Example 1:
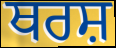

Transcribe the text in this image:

ਥਰਸ਼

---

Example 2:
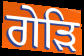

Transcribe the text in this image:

ਗੇੜਿ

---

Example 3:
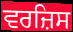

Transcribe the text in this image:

ਵਰਜ਼ਿਸ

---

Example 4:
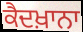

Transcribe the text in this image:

ਕੈਦਖ਼ਾਨਾ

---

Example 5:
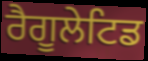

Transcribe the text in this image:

ਰੈਗੂਲੇਟਿਡ